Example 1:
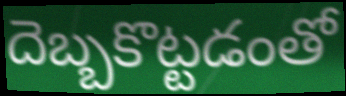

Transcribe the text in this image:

దెబ్బకొట్టడంతో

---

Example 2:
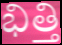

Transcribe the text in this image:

భిత్తి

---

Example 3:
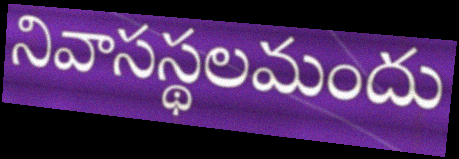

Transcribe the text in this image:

నివాసస్థలమందు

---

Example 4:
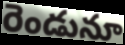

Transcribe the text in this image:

రెండునూ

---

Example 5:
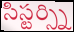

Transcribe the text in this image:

సిస్టర్స్ని